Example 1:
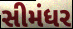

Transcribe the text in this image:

સીમંધર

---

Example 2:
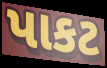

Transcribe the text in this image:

પાકટ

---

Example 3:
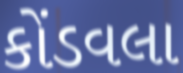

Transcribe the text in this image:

કોંડવલા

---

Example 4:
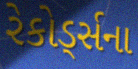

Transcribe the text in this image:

રેકોર્ડ્સના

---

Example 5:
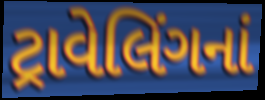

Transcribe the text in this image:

ટ્રાવેલિંગનાં